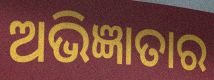
ଅଭିଜ୍ଞାତାର